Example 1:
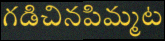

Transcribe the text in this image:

గడిచినపిమ్మట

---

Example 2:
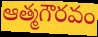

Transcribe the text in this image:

ఆత్మగౌరవం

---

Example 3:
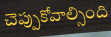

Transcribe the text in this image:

చెప్పుకోవాల్సింది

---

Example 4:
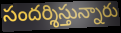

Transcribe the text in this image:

సందర్శిస్తున్నారు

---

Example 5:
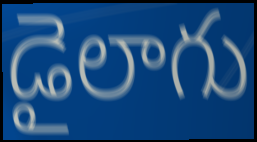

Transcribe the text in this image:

డైలాగు